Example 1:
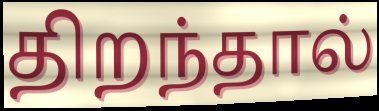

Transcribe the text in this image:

திறந்தால்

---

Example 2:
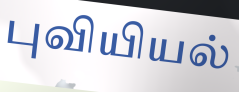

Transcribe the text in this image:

புவியியல்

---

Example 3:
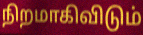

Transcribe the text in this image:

நிறமாகிவிடும்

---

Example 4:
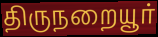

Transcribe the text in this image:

திருநறையூர்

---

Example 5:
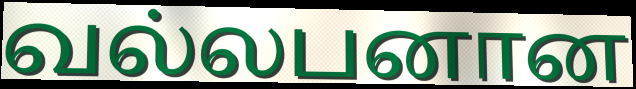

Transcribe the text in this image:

வல்லபனான